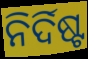
ନିର୍ଦିଷ୍ଟ